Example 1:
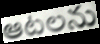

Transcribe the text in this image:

ఆటలను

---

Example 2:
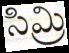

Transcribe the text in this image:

సిమ్రి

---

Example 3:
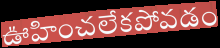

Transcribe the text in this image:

ఊహించలేకపోవడం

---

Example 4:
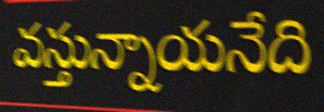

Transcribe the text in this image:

వస్తున్నాయనేది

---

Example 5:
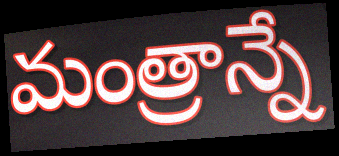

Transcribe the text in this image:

మంత్రాన్నే